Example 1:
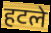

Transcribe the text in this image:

हटले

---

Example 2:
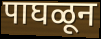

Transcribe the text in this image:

पाघळून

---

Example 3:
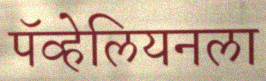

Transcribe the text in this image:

पॅव्हेलियनला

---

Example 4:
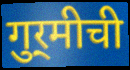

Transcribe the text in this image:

गुर्मीची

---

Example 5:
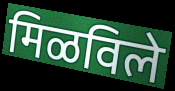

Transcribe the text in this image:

मिळविले